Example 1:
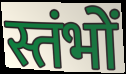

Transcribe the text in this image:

स्तंभों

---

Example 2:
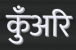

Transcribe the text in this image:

कुँअरि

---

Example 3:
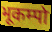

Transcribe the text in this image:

भूकम्पो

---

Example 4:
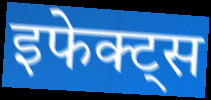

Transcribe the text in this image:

इफेक्‍ट्स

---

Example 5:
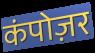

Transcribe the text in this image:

कंपोज़र